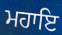
ਮਹਾਇ